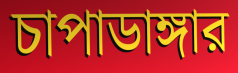
চাপাডাঙ্গার